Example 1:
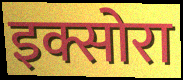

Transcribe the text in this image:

इक्सोरा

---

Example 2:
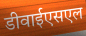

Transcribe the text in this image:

डीवाईएसएल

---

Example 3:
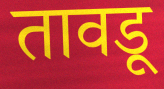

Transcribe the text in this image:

तावडू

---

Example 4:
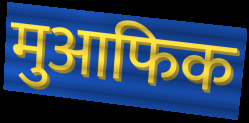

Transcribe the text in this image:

मुआफिक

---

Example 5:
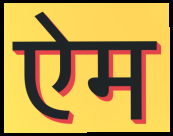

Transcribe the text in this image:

ऐम